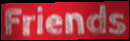
Friends